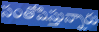
సంతోషిస్తున్నారు